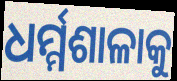
ଧର୍ମ୍ମଶାଳାକୁ